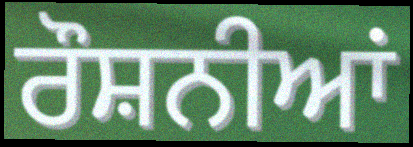
ਰੌਸ਼ਨੀਆਂ